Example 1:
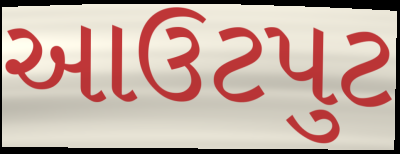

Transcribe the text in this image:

આઉટપુટ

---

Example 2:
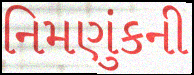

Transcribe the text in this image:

નિમણુંકની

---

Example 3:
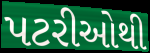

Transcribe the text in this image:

પટરીઓથી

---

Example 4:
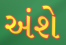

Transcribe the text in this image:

અંશે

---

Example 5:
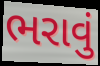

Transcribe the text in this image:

ભરાવું